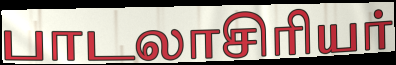
பாடலாசிரியர்